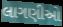
લાગણીઓ